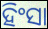
ହିଂସା